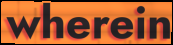
wherein